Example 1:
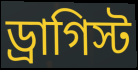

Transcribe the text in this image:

ড্রাগিস্ট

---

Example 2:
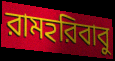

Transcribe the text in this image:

রামহরিবাবু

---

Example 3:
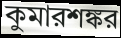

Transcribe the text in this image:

কুমারশঙ্কর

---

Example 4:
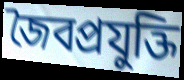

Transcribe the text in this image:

জৈবপ্রযুক্তি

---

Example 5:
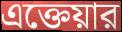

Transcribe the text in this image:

এক্তেয়ার